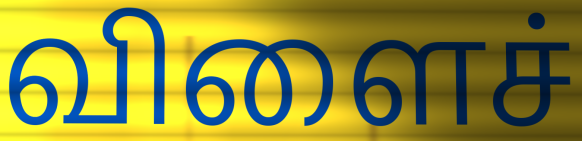
விளைச்